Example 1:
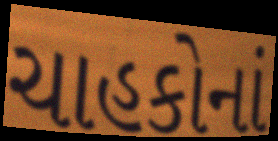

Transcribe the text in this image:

ચાહકોનાં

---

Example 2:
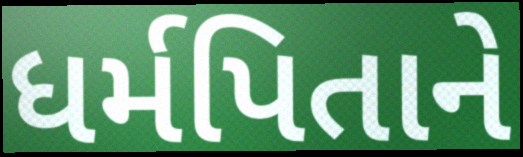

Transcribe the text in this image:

ધર્મપિતાને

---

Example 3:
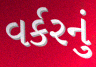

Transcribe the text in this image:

વર્કરનું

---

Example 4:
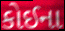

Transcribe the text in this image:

કોઈના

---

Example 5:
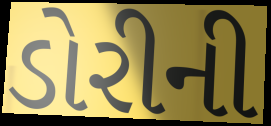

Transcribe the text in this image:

ડોરીની